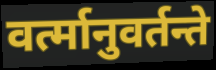
वर्त्मानुवर्तन्ते